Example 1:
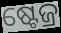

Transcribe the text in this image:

ଷ୍ଟେଜ୍ର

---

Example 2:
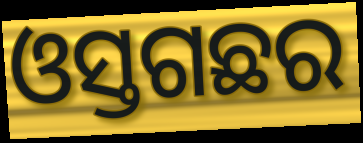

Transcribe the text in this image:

ଓସ୍ତଗଛର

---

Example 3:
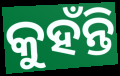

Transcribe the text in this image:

କୁହଁନ୍ତି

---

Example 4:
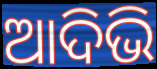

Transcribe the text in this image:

ଆଦିଭି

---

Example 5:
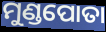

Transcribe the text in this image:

ମୁଣ୍ଡପୋତା